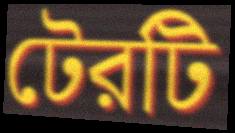
টেরটি